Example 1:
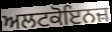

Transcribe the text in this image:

ਅਲਟਕੋਇਨਜ਼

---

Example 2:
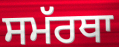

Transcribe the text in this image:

ਸਮੱਰਥਾ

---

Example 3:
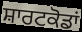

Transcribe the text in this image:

ਸ਼ਾਰਟਕੋਡਾਂ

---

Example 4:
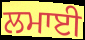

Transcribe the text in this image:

ਲਮਾਈ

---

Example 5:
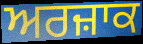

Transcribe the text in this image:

ਅਰਜ਼ਾਕ